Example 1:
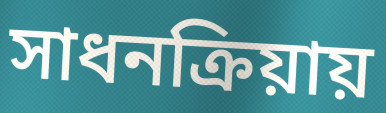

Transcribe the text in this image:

সাধনক্রিয়ায়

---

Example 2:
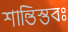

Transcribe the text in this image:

শান্তিস্তবঃ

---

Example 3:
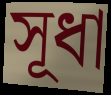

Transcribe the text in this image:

সূধা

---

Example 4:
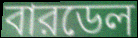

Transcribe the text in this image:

বারডেল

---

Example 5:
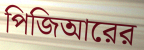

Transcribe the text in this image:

পিজিআরের